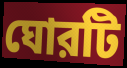
ঘোরটি